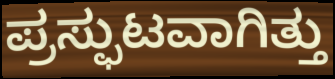
ಪ್ರಸ್ಫುಟವಾಗಿತ್ತು